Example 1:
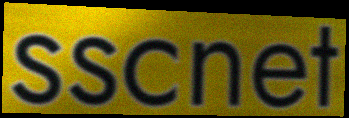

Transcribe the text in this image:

sscnet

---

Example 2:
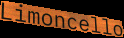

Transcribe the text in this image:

Limoncello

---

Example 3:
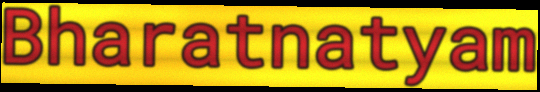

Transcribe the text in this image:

Bharatnatyam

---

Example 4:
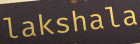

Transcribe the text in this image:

lakshala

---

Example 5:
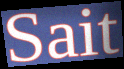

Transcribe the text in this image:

Sait